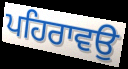
ਪਹਿਰਾਵਉ